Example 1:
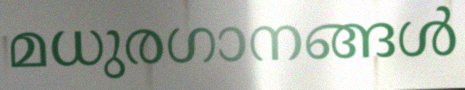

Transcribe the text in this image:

മധുരഗാനങ്ങൾ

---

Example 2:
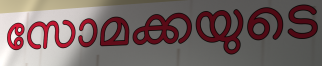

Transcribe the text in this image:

സോമക്കയുടെ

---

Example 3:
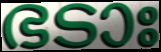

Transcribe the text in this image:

ഭടാഃ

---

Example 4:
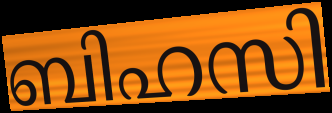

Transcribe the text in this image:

ബിഹസി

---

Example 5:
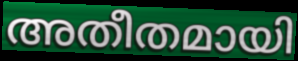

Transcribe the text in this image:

അതീതമായി